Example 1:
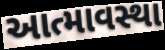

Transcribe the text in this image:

આત્માવસ્થા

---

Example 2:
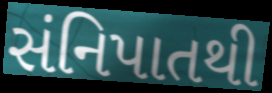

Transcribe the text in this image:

સંનિપાતથી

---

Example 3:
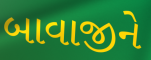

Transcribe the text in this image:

બાવાજીને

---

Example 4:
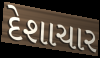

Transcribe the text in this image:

દેશાચાર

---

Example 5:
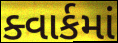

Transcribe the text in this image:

ક્વાર્કમાં